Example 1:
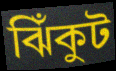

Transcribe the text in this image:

ঝিঁকুট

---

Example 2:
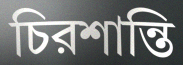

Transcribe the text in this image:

চিরশান্তি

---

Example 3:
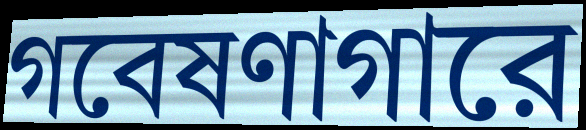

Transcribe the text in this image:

গবেষণাগারে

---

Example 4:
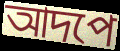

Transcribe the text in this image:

আদপে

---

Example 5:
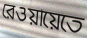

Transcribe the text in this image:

রেওয়ায়েতে